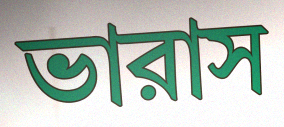
ভারাস